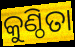
କୁଣ୍ଠିତା